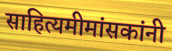
साहित्यमीमांसकांनी